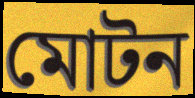
মোটন